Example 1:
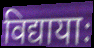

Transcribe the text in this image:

विद्यायाः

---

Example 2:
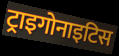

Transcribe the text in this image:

ट्राइगोनाइटिस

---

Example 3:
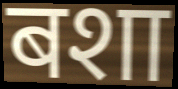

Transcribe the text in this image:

बशा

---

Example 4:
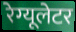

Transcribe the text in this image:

रेग्यूलेटर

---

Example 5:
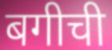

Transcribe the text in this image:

बगीची